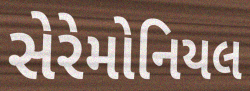
સેરેમોનિયલ